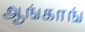
ஆங்காங்